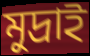
মুদ্রাই